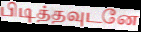
பிடித்தவுடனே